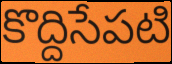
కొద్దిసేపటి